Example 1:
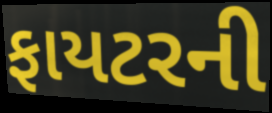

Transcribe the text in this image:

ફાયટરની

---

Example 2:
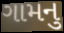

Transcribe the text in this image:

ગામનુ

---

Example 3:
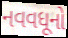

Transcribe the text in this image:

નવવધૂનો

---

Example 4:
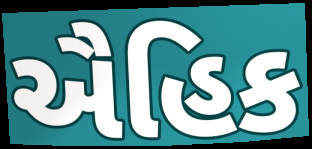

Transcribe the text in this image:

ઐહિક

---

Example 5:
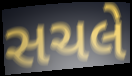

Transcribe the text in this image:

સચલે